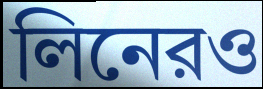
লিনেরও